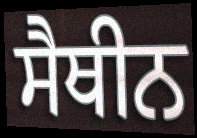
ਸੈਥੀਨ